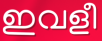
ഇവളീ